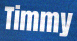
Timmy